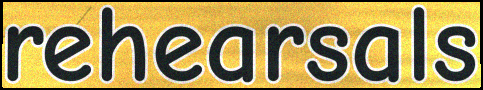
rehearsals